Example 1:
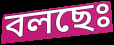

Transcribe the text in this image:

বলছেঃ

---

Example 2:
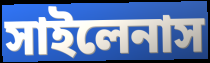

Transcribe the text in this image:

সাইলেনাস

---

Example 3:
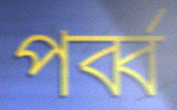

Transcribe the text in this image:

পর্ব্ব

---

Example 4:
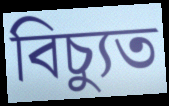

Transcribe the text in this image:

বিচ্যুত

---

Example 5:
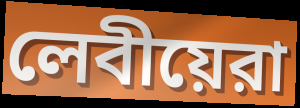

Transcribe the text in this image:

লেবীয়েরা